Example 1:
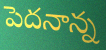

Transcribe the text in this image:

పెదనాన్న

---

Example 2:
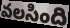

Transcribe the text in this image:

వలసింది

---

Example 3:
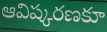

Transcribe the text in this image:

ఆవిష్కరణకూ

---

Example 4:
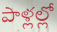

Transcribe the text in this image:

పాళ్లల్లో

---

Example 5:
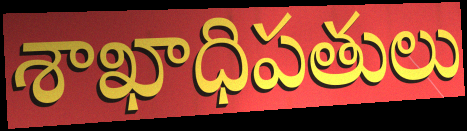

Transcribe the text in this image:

శాఖాధిపతులు